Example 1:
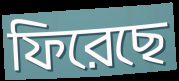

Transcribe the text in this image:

ফিরেছে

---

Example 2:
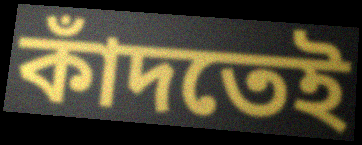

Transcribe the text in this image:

কাঁদতেই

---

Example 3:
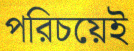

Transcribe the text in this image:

পরিচয়েই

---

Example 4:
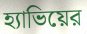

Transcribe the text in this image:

হ্যাভিয়ের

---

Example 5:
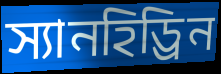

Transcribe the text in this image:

স্যানহিড্রিন